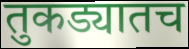
तुकड्यातच